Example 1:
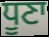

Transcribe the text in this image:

ਧੂਣਾ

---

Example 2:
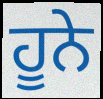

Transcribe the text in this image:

ਹੂਨੇ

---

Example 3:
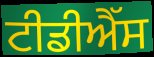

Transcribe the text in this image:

ਟੀਡੀਐੱਸ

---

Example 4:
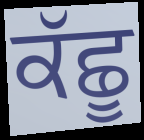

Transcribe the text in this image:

ਕੱਛੂ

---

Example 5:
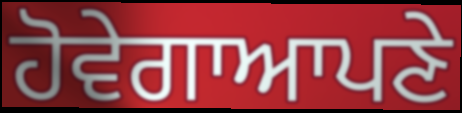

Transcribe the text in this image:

ਹੋਵੇਗਾਆਪਣੇ